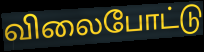
விலைபோட்டு